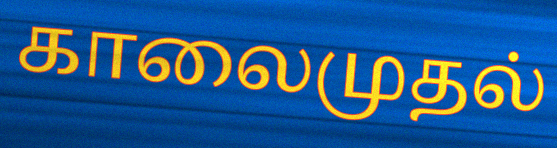
காலைமுதல்